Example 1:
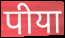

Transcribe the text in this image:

पीया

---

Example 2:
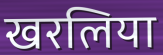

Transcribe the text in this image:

खरलिया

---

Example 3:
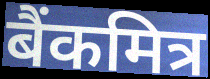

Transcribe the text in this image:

बैंकमित्र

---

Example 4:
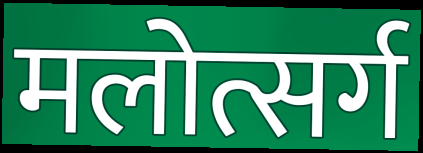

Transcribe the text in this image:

मलोत्सर्ग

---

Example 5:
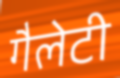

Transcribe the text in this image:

गैलेटी